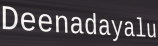
Deenadayalu